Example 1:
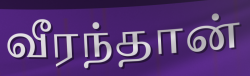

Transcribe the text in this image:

வீரந்தான்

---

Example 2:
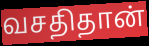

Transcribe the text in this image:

வசதிதான்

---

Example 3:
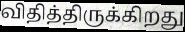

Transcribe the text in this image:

விதித்திருக்கிறது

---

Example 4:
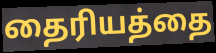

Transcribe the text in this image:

தைரியத்தை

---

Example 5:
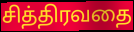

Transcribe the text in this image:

சித்திரவதை